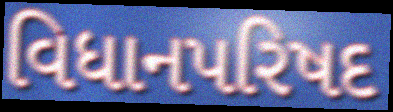
વિધાનપરિષદ